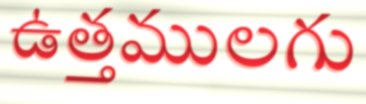
ఉత్తములగు